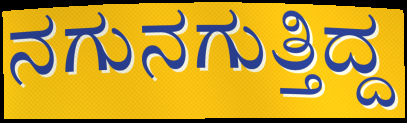
ನಗುನಗುತ್ತಿದ್ದ